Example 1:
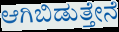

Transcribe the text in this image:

ಆಗಿಬಿಡುತ್ತೇನೆ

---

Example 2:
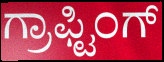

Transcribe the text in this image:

ಗ್ರಾಫ್ಟಿಂಗ್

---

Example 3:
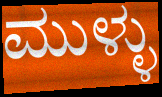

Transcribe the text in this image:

ಮುಳ್ಳು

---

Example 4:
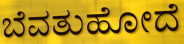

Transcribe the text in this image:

ಬೆವತುಹೋದೆ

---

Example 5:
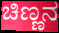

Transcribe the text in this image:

ಚಿಣ್ಣನ